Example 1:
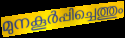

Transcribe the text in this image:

മുനകൂർപ്പിച്ചെത്തും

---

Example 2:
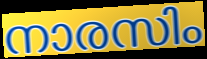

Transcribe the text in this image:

നാരസിം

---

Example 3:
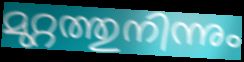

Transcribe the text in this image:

മുറ്റത്തുനിന്നും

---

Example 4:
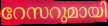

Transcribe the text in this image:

റേസറുമായി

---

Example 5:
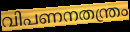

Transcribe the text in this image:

വിപണനതന്ത്രം